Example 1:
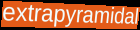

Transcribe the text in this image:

extrapyramidal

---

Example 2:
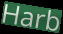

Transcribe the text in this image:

Harb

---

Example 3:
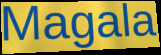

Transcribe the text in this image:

Magala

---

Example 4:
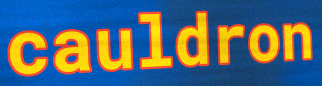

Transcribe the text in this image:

cauldron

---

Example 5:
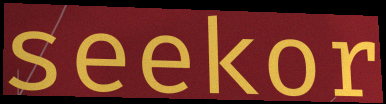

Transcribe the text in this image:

seekor